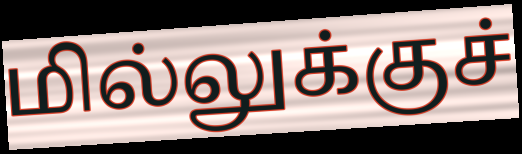
மில்லுக்குச்